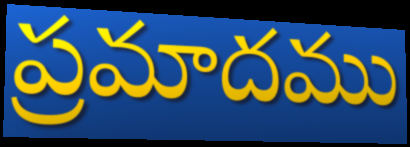
ప్రమాదము